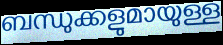
ബന്ധുക്കളുമായുള്ള